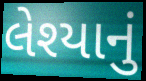
લેશ્યાનું